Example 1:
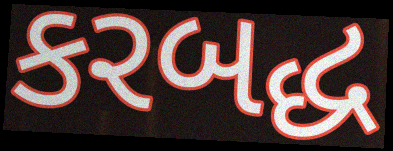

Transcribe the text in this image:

કરબદ્ધ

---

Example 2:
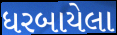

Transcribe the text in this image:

ધરબાયેલા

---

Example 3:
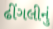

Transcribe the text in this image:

ઢીંગલીનું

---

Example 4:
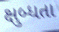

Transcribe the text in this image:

ક્ષુબ્ધતા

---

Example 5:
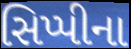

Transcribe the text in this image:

સિપ્પીના